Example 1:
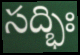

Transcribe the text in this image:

సద్భిః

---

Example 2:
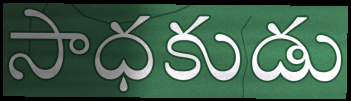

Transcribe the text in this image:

సాధకుడు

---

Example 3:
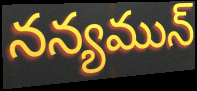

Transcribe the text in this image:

నన్యమున్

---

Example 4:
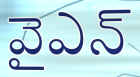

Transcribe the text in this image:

వైఎన్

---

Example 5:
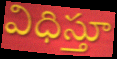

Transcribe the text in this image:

విధిస్తూ